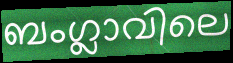
ബംഗ്ലാവിലെ